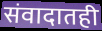
संवादातही